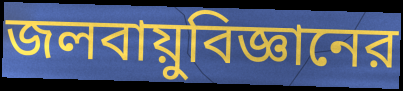
জলবায়ুবিজ্ঞানের